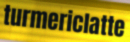
turmericlatte